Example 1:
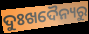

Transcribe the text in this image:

ଦୁଃଖଦୈନ୍ୟରୁ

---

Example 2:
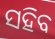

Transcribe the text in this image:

ସହିବ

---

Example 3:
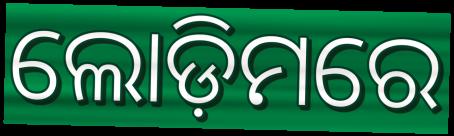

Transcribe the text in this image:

ଲୋଡ଼ିମରେ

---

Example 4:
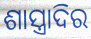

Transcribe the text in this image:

ଶାସ୍ତ୍ରାଦିର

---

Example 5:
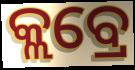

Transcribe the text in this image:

କ୍ଲବ୍ରେ